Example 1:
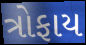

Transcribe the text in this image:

ત્રોફાય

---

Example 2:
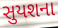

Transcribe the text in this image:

સુયશના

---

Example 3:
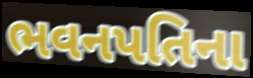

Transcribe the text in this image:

ભવનપતિના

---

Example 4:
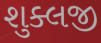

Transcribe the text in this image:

શુક્લજી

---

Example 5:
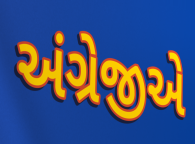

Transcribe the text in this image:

અંગ્રેજીએ